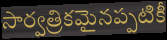
సార్వత్రికమైనప్పటికీ